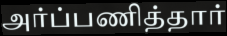
அர்ப்பணித்தார்